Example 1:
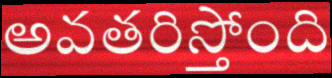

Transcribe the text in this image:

అవతరిస్తోంది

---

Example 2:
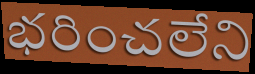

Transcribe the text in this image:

భరించలేని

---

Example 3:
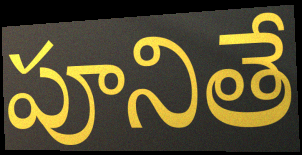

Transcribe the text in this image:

పూనితే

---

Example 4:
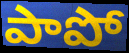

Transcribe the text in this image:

పాపో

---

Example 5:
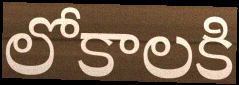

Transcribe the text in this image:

లోకాలకి